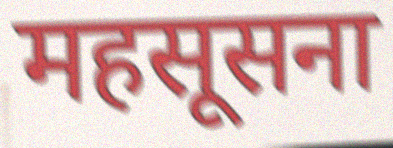
महसूसना